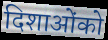
दिशाओंको